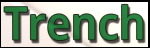
Trench